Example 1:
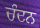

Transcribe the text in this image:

ਚੰਦਨ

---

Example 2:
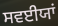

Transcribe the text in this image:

ਸਵਈਯਾਂ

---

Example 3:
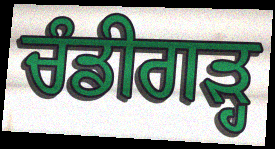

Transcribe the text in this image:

ਚੰਡੀਗਡ਼੍ਹ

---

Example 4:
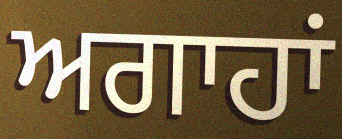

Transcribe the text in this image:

ਅਗਾਹਾਂ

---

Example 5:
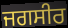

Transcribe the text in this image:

ਜਗਸੀਰ